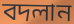
বদলান